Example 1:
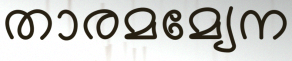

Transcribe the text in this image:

താരമമ്യേന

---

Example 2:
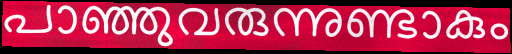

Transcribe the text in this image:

പാഞ്ഞുവരുന്നുണ്ടാകും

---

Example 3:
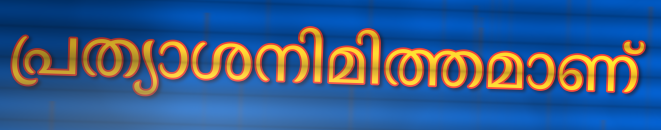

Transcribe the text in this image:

പ്രത്യാശനിമിത്തമാണ്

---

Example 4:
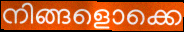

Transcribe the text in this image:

നിങ്ങളൊക്കെ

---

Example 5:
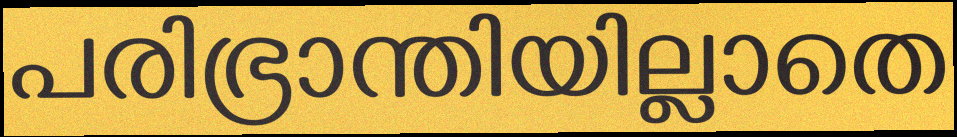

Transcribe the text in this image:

പരിഭ്രാന്തിയില്ലാതെ